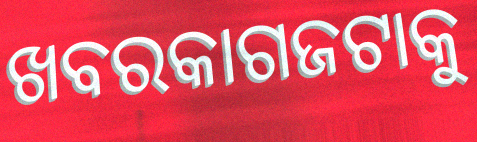
ଖବରକାଗଜଟାକୁ